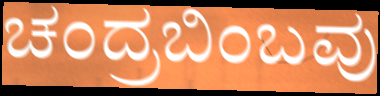
ಚಂದ್ರಬಿಂಬವು